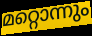
മറ്റൊന്നും